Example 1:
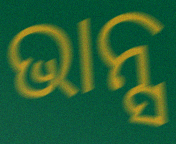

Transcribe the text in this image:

ଭାନ୍ସ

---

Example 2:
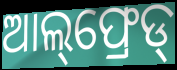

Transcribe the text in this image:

ଆଲ୍‌ଫ୍ରେଡ୍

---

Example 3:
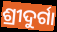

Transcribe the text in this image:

ଶ୍ରୀଦୁର୍ଗା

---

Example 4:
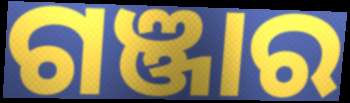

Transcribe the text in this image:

ଗଞ୍ଜାର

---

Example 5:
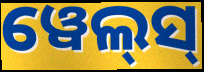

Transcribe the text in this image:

ୱେଲ୍‌ସ୍